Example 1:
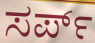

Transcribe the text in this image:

ಸರ್ಪ್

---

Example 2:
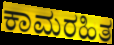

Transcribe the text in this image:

ಕಾಮರಹಿತ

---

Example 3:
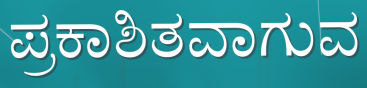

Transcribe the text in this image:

ಪ್ರಕಾಶಿತವಾಗುವ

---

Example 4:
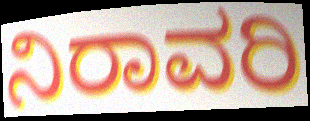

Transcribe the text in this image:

ನಿರಾವರಿ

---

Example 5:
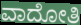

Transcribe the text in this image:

ವಾದೋತಿ